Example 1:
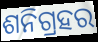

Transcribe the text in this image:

ଶନିଗ୍ରହର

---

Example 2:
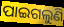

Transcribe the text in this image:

ପାଇଗଲୁଣି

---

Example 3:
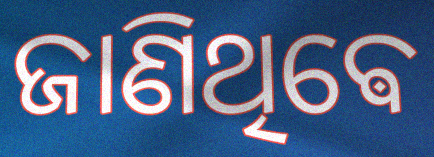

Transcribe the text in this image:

ଜାଣିଥିଵେ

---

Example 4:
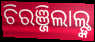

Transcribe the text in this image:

ଚିରଞ୍ଜିଲାଲ୍ଙ୍କ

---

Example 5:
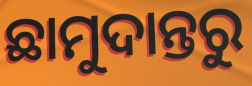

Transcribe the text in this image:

ଛାମୁଦାନ୍ତରୁ